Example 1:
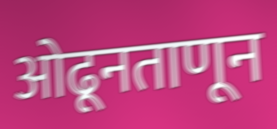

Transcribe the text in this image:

ओढूनताणून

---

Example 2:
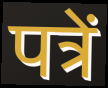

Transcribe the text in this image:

पत्रें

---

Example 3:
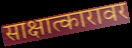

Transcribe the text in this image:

साक्षात्कारावर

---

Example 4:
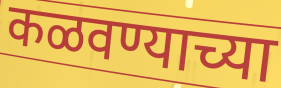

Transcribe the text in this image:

कळवण्याच्या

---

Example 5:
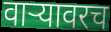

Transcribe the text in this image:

वाऱ्यावरच